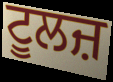
ਟੂਲਜ਼